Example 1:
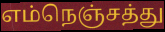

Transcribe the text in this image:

எம்நெஞ்சத்து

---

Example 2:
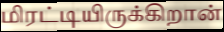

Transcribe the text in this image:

மிரட்டியிருக்கிறான்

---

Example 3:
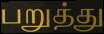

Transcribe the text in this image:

பறுத்து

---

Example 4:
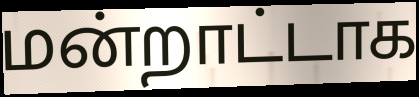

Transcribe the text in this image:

மன்றாட்டாக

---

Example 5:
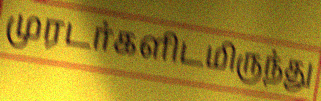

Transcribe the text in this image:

முரடர்களிடமிருந்து